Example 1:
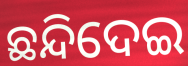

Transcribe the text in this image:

ଛନ୍ଦିଦେଇ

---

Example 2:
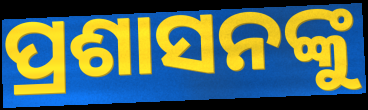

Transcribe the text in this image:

ପ୍ରଶାସନଙ୍କୁ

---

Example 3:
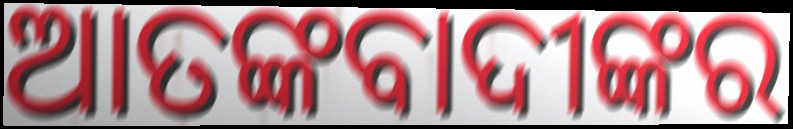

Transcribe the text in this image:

ଆତଙ୍କବାଦୀଙ୍କର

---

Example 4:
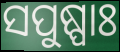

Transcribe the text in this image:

ସପୁଷ୍ପାଃ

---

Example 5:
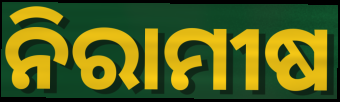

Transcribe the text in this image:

ନିରାମୀଷ